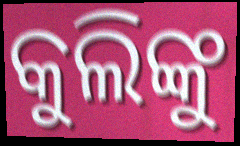
କୁଲିଙ୍କୁ